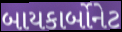
બાયકાર્બોનેટ